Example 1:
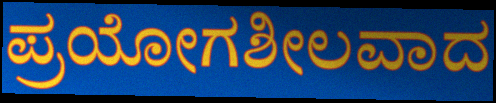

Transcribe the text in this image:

ಪ್ರಯೋಗಶೀಲವಾದ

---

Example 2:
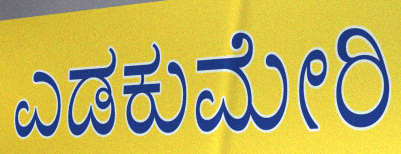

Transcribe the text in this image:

ಎಡಕುಮೇರಿ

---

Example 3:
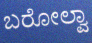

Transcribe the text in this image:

ಬರೋಲ್ವಾ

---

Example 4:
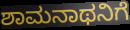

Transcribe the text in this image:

ಶಾಮನಾಥನಿಗೆ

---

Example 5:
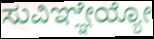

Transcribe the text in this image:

ಸುವಿಞ್ಞೇಯ್ಯೋ